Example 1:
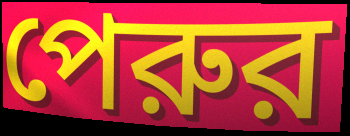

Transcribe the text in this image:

পেরুর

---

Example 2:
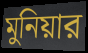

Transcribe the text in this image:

মুনিয়ার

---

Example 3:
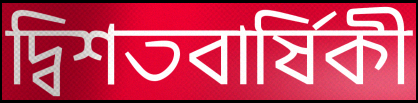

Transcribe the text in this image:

দ্বিশতবার্ষিকী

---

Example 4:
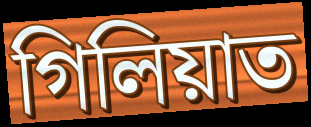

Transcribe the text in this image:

গিলিয়াত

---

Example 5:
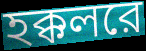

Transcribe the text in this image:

হক্কলরে